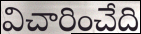
విచారించేది